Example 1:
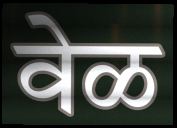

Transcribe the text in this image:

वेळ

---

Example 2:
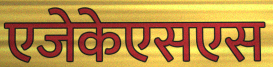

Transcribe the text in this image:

एजेकेएसएस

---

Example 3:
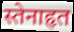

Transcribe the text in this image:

स्तेनाहृत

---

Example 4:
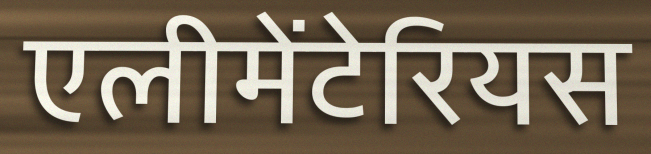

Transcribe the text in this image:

एलीमेंटेरियस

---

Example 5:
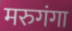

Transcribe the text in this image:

मरुगंगा